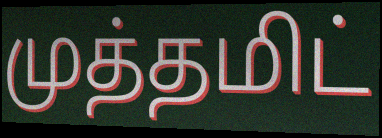
முத்தமிட்